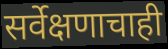
सर्वेक्षणाचाही